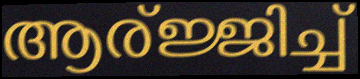
ആര്ജ്ജിച്ച്